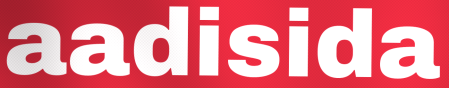
aadisida